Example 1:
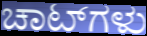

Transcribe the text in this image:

ಚಾಟ್‌ಗಳು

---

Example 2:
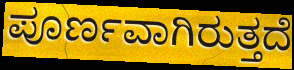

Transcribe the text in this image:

ಪೂರ್ಣವಾಗಿರುತ್ತದೆ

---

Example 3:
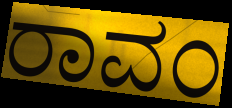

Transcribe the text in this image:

ರಾವಂ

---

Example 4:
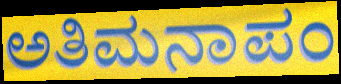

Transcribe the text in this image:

ಅತಿಮನಾಪಂ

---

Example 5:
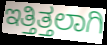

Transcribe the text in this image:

ಇತ್ತಿತ್ತಲಾಗಿ